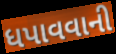
ધપાવવાની